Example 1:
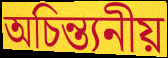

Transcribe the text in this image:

অচিন্ত্যনীয়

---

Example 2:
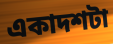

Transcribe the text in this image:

একাদশটা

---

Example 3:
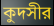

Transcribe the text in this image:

কুদসীর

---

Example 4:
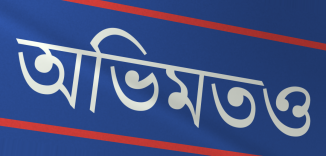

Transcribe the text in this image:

অভিমতও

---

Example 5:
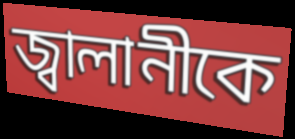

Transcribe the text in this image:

জ্বালানীকে